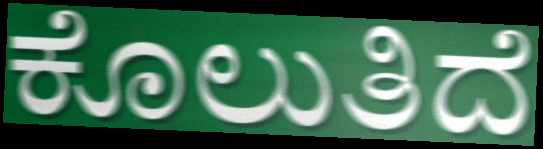
ಕೊಲುತಿದೆ